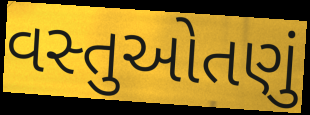
વસ્તુઓતણું